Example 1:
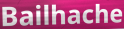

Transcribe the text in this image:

Bailhache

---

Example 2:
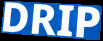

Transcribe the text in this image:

DRIP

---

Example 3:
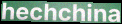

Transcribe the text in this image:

hechchina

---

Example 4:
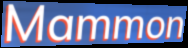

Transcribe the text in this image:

Mammon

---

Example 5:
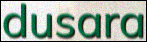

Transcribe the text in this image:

dusara